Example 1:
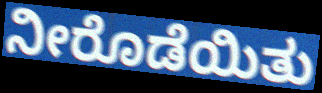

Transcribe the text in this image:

ನೀರೊಡೆಯಿತು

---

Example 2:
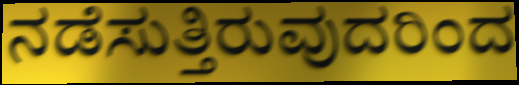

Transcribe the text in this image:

ನಡೆಸುತ್ತಿರುವುದರಿಂದ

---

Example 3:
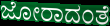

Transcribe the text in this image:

ಜೋರಾದಂತೆ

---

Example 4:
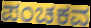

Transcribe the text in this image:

ಪಂಚಕವ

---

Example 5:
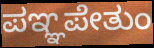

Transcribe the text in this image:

ಪಞ್ಞಪೇತುಂ